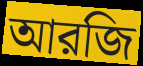
আরজি